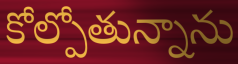
కోల్పోతున్నాను